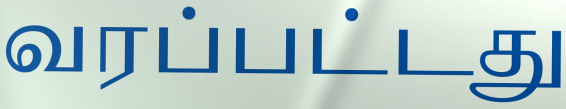
வரப்பட்டது